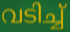
വടിച്ച്